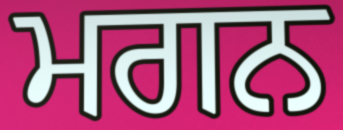
ਮਗਨ